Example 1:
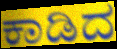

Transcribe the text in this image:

ಕಾಡಿದ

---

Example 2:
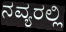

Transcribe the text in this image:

ನವ್ಯರಲ್ಲಿ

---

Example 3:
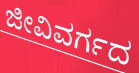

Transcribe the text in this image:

ಜೀವಿವರ್ಗದ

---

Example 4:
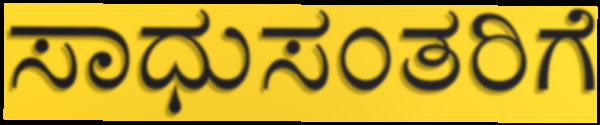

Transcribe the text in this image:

ಸಾಧುಸಂತರಿಗೆ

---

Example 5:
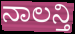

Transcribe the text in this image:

ನಾಲನ್ತಿ